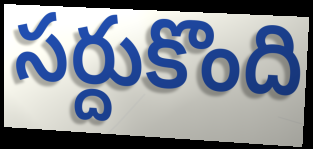
సర్దుకొంది